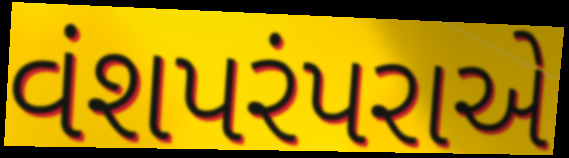
વંશપરંપરાએ